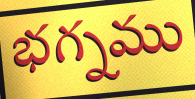
భగ్నము